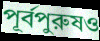
পূর্বপুরুষও